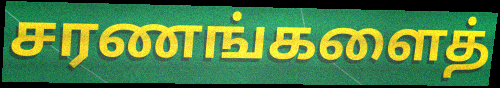
சரணங்களைத்